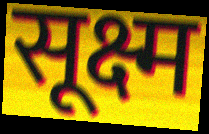
सूक्ष्‍म